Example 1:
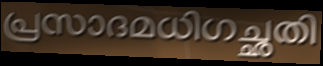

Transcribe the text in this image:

പ്രസാദമധിഗച്ഛതി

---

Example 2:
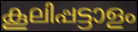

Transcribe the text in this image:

കൂലിപ്പട്ടാളം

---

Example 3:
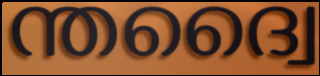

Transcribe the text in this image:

ന്തദ്വൈ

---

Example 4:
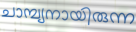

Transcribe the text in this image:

ചാമ്പ്യനായിരുന്ന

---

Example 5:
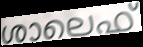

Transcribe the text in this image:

ശാലെഫ്